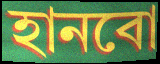
হানবো